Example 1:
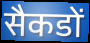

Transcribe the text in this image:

सैकडों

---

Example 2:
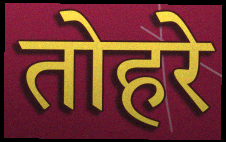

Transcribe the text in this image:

तोहरे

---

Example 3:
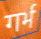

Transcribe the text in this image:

गर्भ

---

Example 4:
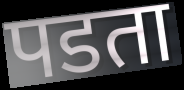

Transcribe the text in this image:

पडता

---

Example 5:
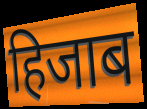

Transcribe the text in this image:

हिजाब